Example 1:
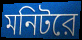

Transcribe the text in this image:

মনিটরে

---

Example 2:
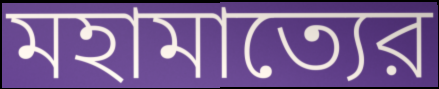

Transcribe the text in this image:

মহামাত্যের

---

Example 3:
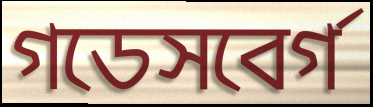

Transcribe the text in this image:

গডেসবের্গ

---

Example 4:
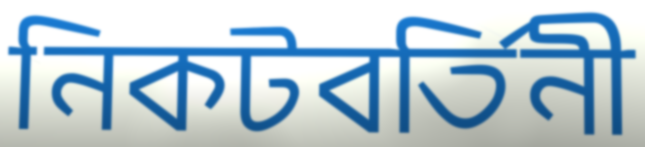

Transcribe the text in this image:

নিকটবর্তিনী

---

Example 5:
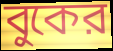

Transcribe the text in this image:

বুকের